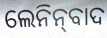
ଲେନିନ୍‌ବାଦ